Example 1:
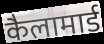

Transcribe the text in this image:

कैलामार्ड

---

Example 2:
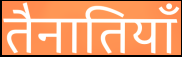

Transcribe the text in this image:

तैनातियाँ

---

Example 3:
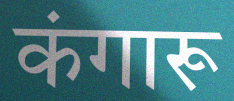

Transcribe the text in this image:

कंगारू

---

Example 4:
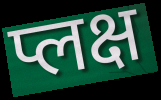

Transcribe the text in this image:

प्लक्ष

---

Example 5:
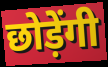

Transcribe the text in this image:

छोड़ेंगी